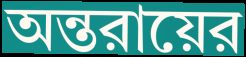
অন্তরায়ের